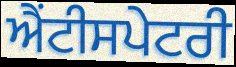
ਐਂਟੀਸਪੇਟਰੀ